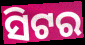
ସିଟର